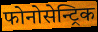
फोनोसेन्ट्रिक